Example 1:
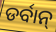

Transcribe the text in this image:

ଡର୍ବାନ୍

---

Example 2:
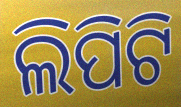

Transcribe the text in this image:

ଲିପିଟି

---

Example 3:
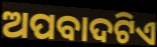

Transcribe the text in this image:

ଅପବାଦଟିଏ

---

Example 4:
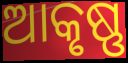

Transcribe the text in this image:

ଆକୃଷ୍ଣ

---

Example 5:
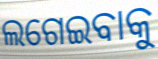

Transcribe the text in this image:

ଲଗେଇବାକୁ